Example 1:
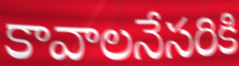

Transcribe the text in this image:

కావాలనేసరికి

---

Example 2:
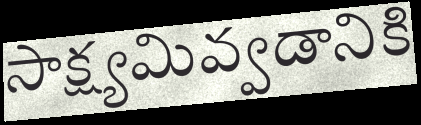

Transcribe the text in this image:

సాక్ష్యమివ్వడానికి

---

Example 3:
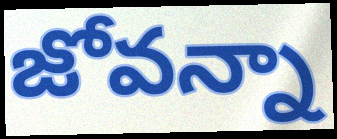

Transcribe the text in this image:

జోవన్నా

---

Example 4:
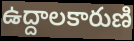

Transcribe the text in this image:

ఉద్దాలకారుణి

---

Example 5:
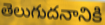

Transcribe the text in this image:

తెలుగుదనానికి